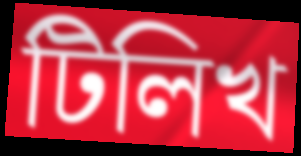
টিলিখ